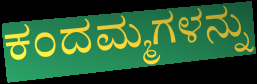
ಕಂದಮ್ಮಗಳನ್ನು